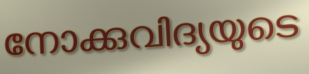
നോക്കുവിദ്യയുടെ